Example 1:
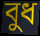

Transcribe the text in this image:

বুধ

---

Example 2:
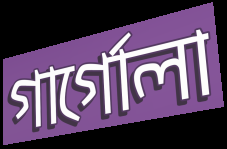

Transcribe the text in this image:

গাৰ্গোলা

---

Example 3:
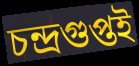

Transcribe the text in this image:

চন্দ্ৰগুপ্তই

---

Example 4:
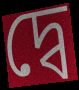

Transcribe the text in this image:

দ্বে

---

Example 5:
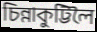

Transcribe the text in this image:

চিন্নাকুট্টিলৈ